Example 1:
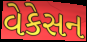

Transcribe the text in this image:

વેકેસન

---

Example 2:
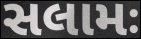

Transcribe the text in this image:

સલામઃ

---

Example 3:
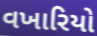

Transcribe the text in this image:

વખારિયો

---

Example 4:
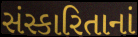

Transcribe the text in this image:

સંસ્કારિતાનાં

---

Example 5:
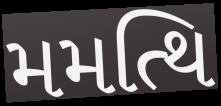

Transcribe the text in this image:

મમત્થિ